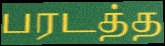
பரடத்த